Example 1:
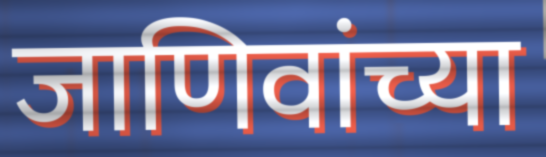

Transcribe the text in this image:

जाणिवांच्या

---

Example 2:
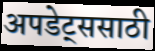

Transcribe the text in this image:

अपडेट्ससाठी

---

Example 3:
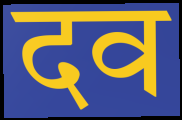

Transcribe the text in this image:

दव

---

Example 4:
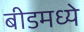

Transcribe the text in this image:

बीडमध्ये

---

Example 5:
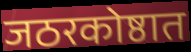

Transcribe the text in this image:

जठरकोष्ठात